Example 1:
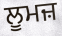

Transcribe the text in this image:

ਲੂਮਜ਼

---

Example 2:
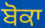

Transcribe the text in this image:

ਬੋਕਾ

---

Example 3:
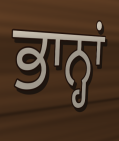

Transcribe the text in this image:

ਭਾਨ੍ਹਾਂ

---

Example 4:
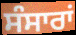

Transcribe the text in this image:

ਸੰਸਾਰਾਂ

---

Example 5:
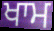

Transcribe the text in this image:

ਖਾਮ